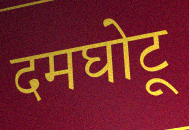
दमघोटू